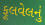
ફૂલવેલનું